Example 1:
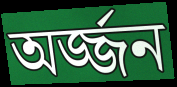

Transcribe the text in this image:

অর্জ্জন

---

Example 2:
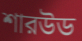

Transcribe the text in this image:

শারউড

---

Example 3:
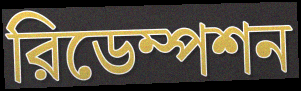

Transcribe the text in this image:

রিডেম্পশন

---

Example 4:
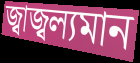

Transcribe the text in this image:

জ্বাজ্বল্যমান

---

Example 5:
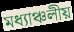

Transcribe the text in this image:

মধ্যাঞ্চলীয়